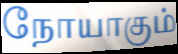
நோயாகும்